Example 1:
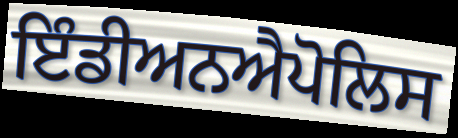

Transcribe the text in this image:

ਇੰਡੀਅਨਐਪੋਲਿਸ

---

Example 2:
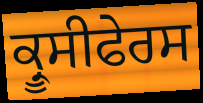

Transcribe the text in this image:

ਕ੍ਰੂਸੀਫੇਰਸ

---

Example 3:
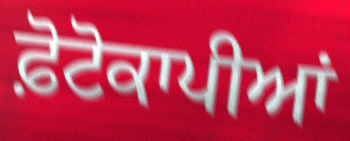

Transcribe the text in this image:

ਫ਼ੋਟੋਕਾਪੀਆਂ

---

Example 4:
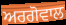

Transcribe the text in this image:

ਅਰਗੋਵਾਲ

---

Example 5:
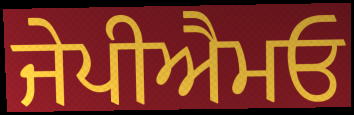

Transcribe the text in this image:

ਜੇਪੀਐਮਓ